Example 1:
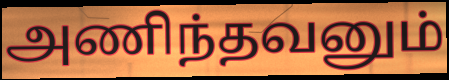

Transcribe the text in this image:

அணிந்தவனும்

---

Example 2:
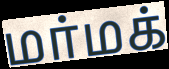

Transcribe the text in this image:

மர்மக்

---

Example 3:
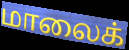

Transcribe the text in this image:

மாலைக்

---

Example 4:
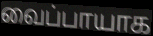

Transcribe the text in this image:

வைப்பாயாக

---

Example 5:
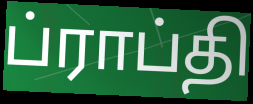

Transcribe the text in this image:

ப்ராப்தி